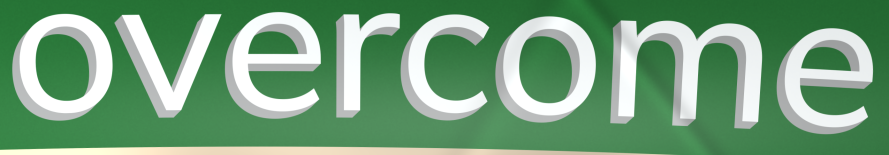
overcome